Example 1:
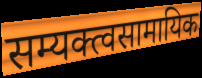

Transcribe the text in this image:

सम्यक्त्वसामायिक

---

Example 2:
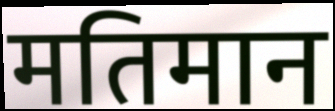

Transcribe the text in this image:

मतिमान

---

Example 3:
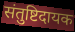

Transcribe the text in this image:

संतुष्टिदायक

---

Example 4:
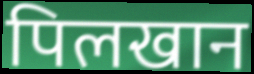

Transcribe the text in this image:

पिलखान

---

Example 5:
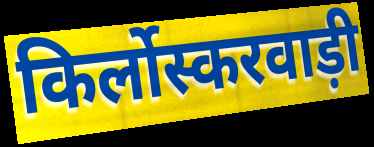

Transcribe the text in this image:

किर्लोस्करवाड़ी